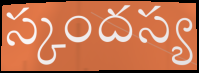
స్కందస్య